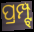
ପ୍ରମ୍ପ୍ଟ୍